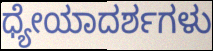
ಧ್ಯೇಯಾದರ್ಶಗಳು